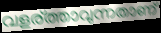
വളര്ത്താവുന്നതാണ്